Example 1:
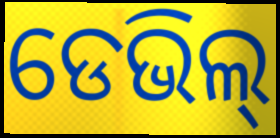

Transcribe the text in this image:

ଡେଭିଲ୍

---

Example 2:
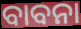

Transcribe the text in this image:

ବାବନା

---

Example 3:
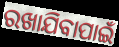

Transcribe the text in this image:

ରଖାଯିବାପାଇଁ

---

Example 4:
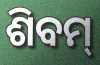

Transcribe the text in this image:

ଶିବମ୍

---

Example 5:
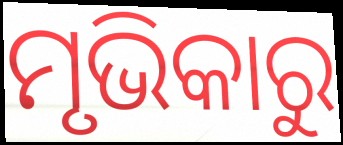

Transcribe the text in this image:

ମୃଭିକାରୁ